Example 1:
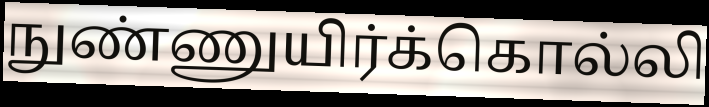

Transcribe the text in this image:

நுண்ணுயிர்க்கொல்லி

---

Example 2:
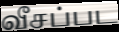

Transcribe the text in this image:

வீசப்பட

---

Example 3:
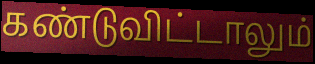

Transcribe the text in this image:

கண்டுவிட்டாலும்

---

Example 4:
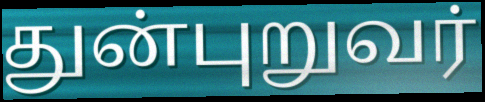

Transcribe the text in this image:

துன்புறுவர்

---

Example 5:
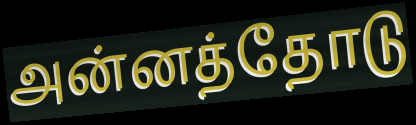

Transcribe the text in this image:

அன்னத்தோடு